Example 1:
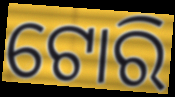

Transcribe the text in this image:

ଟୋରି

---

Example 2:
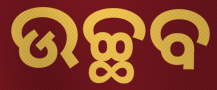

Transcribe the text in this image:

ଉଚ୍ଛବ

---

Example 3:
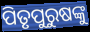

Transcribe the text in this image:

ପିତୃପୁରୁଷଙ୍କୁ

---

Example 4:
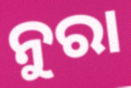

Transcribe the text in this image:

ନୁରା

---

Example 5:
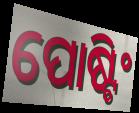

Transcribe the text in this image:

ପୋଷ୍ଟିଂ